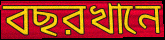
বছরখানে